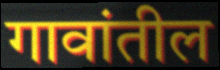
गावांतील